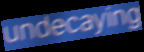
undecaying